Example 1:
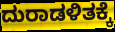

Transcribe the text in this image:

ದುರಾಡಳಿತಕ್ಕೆ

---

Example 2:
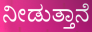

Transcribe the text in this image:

ನೀಡುತ್ತಾನೆ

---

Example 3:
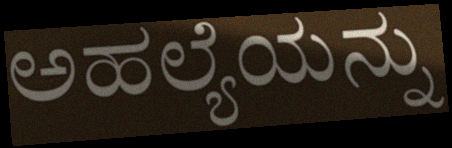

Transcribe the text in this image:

ಅಹಲ್ಯೆಯನ್ನು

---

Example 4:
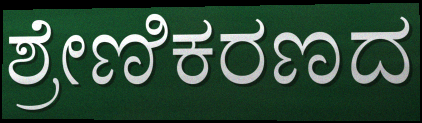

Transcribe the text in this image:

ಶ್ರೇಣಿಕರಣದ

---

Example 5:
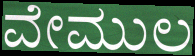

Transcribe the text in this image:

ವೇಮುಲ